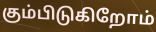
கும்பிடுகிறோம்